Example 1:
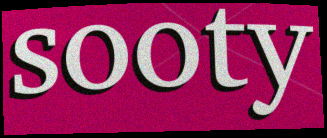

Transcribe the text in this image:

sooty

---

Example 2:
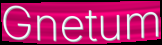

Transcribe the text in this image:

Gnetum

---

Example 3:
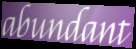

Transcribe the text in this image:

abundant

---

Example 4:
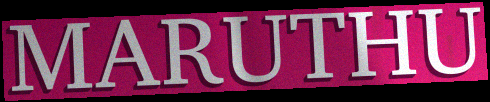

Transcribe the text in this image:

MARUTHU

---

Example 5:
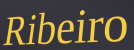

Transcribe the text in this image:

Ribeiro